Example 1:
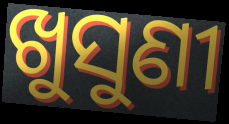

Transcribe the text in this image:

ଖୁସୁଣୀ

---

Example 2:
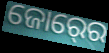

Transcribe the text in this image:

ଜୋର୍‍ରେ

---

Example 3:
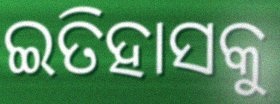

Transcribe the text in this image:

ଇତିହାସକୁ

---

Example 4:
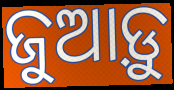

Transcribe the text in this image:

ଜୁଆଡ଼ୁ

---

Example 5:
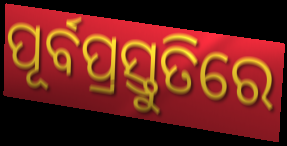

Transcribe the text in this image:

ପୂର୍ବପ୍ରସ୍ତୁତିରେ